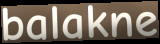
balakne